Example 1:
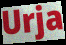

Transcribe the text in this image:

Urja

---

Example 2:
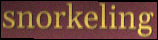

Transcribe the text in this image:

snorkeling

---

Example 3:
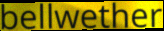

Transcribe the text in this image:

bellwether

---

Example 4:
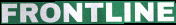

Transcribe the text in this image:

FRONTLINE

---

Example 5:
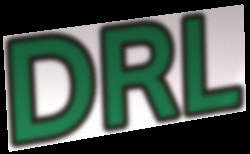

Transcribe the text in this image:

DRL